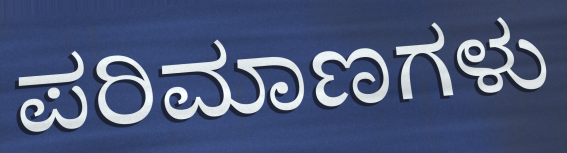
ಪರಿಮಾಣಗಳು